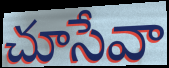
చూసేవా